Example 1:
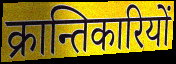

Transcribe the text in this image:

क्रान्तिकारियों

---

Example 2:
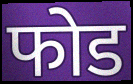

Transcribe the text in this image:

फोड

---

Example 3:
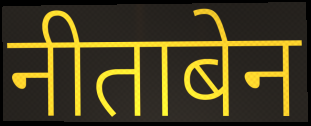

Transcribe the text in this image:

नीताबेन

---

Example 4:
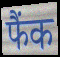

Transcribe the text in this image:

फैंक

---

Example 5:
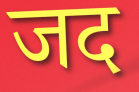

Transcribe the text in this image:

जद